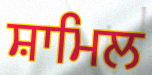
ਸ਼ਾਮਿਲ